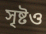
সৃষ্টও